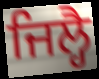
ਜਿਲ੍ਹੈ